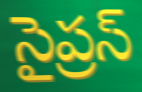
సైప్రస్